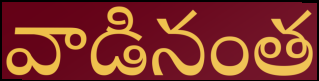
వాడినంత